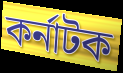
কর্নাটক